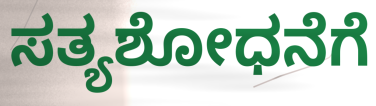
ಸತ್ಯಶೋಧನೆಗೆ